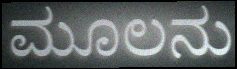
ಮೂಲನು